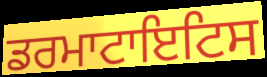
ਡਰਮਾਟਾਇਟਿਸ